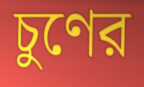
চুণের